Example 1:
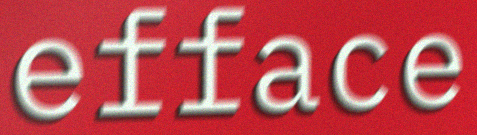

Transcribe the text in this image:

efface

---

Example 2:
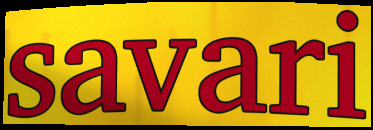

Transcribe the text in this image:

savari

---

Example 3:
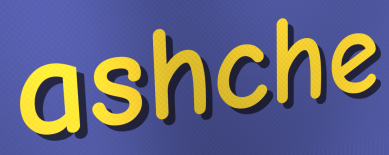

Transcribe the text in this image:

ashche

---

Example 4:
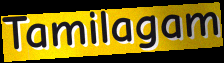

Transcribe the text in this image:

Tamilagam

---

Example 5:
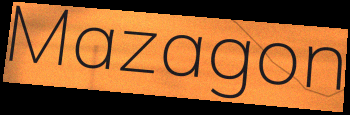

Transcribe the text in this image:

Mazagon